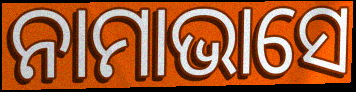
ନାମାଭାସେ